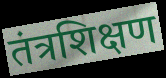
तंत्रशिक्षण